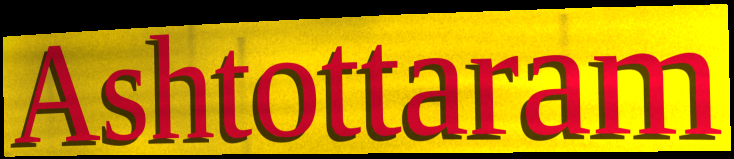
Ashtottaram